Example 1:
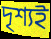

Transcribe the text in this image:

দৃশ্যই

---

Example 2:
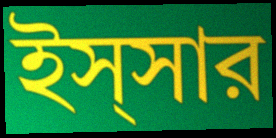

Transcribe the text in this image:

ইস্সার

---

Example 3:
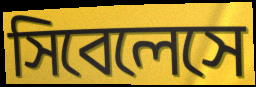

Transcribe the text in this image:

সিবেলেসে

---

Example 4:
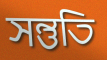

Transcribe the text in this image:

সন্তুতি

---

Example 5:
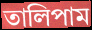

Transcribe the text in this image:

তালিপাম